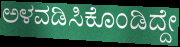
ಅಳವಡಿಸಿಕೊಂಡಿದ್ದೇ